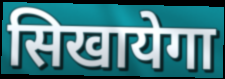
सिखायेगा